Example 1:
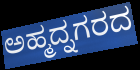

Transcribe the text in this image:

ಅಹ್ಮದ್ನಗರದ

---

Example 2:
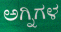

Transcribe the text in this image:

ಅಗ್ನಿಗಳ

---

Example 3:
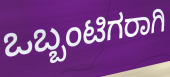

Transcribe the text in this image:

ಒಬ್ಬಂಟಿಗರಾಗಿ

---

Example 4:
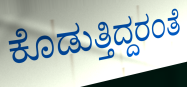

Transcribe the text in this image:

ಕೊಡುತ್ತಿದ್ದರಂತೆ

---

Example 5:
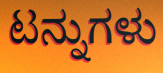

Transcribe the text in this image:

ಟನ್ನುಗಳು